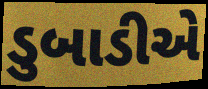
ડુબાડીએ